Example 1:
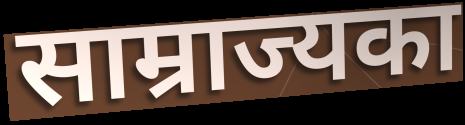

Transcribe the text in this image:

साम्राज्यका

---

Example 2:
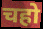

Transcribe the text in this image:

चहो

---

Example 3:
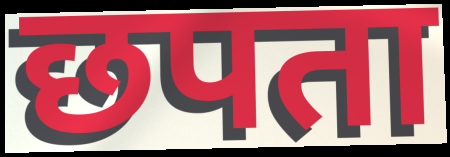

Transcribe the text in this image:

छपता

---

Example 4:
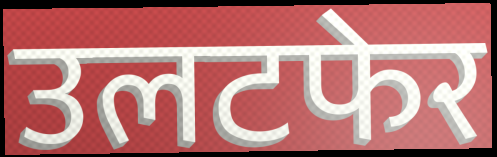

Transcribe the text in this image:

उलटफेर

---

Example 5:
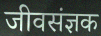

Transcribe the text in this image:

जीवसंज्ञक